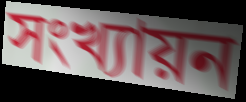
সংখ্যায়ন